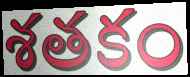
శతకం